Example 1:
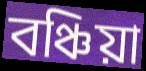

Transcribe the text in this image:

বঞ্চিয়া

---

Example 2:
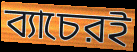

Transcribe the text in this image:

ব্যাচেরই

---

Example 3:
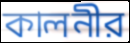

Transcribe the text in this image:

কালনীর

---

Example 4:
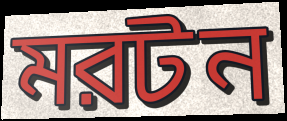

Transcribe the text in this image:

মরটন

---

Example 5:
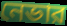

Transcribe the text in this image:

নেভার